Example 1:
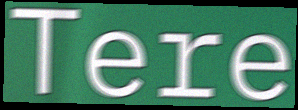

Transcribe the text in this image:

Tere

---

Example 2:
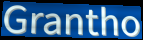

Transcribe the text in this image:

Grantho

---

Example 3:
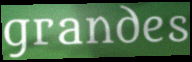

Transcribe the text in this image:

grandes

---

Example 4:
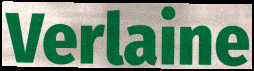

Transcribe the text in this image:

Verlaine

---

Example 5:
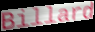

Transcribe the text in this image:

Billard